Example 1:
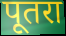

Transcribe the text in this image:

पूतरा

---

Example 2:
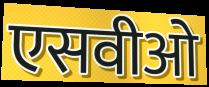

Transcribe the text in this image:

एसवीओ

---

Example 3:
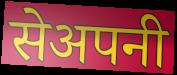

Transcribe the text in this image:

सेअपनी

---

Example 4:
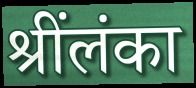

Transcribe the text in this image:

श्रींलंका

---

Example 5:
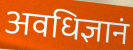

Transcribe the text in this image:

अवधिज्ञानं